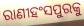
ରାଣୀହଂସପୁରକୁ